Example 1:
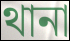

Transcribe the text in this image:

থানা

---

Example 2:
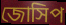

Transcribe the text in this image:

জোসিপ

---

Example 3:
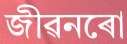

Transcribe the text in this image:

জীৱনৰো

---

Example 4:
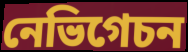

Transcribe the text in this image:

নেভিগেচন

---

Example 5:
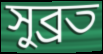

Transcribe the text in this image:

সুব্ৰত